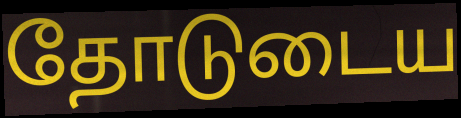
தோடுடைய